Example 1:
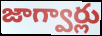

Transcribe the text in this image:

జాగ్వార్లు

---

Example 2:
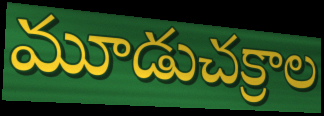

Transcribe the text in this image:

మూడుచక్రాల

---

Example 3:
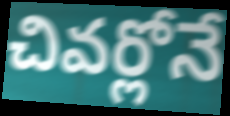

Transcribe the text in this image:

చివర్లోనే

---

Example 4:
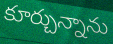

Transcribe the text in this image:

కూర్చున్నాను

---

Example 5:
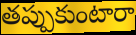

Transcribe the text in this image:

తప్పుకుంటారా